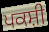
ਪਕਸ਼ੀ